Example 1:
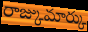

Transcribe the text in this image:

రాజ్కుమార్కు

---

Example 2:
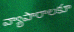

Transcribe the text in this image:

వ్యాపారాలకూ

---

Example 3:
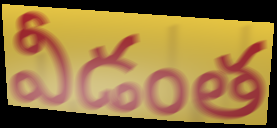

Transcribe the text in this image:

వీడంత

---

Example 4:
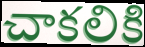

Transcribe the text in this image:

చాకలికి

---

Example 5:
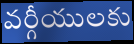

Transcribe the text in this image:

వర్గీయులకు